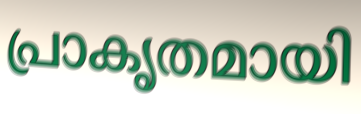
പ്രാകൃതമായി